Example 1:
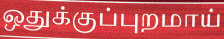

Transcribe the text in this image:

ஒதுக்குப்புறமாய்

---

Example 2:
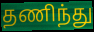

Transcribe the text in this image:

தணிந்து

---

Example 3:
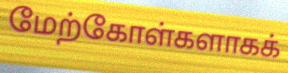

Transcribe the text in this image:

மேற்கோள்களாகக்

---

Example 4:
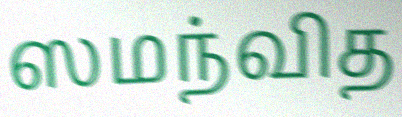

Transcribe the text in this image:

ஸமந்வித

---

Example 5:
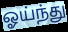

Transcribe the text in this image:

ஓய்ந்து